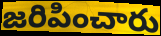
జరిపించారు